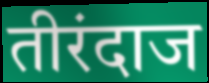
तीरंदाज